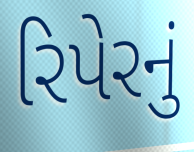
રિપેરનું